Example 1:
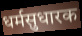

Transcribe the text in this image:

धर्मसुधारक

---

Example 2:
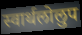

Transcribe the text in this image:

स्वार्थलोलुप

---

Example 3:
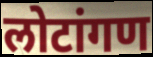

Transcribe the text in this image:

लोटांगण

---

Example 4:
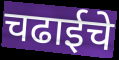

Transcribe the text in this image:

चढाईचे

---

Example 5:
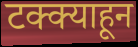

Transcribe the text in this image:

टक्क्याहून